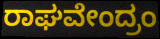
ರಾಘವೇಂದ್ರಂ